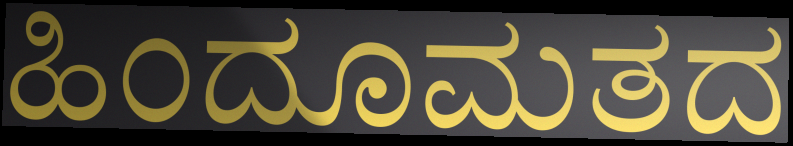
ಹಿಂದೂಮತದ